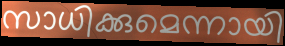
സാധിക്കുമെന്നായി